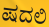
ಷದಲಿ